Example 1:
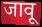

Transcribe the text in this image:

जावू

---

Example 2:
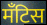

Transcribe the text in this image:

मँटिस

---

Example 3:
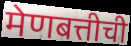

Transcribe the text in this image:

मेणबत्तीची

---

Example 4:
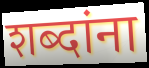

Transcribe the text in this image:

शब्दांना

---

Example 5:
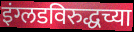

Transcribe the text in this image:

इंग्लडविरुद्धच्या